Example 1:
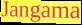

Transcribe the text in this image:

Jangama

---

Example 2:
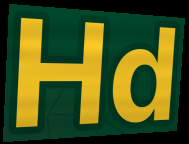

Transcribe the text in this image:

Hd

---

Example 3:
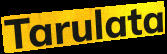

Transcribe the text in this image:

Tarulata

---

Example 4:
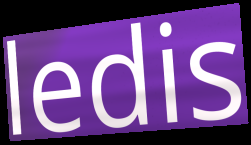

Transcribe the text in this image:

ledis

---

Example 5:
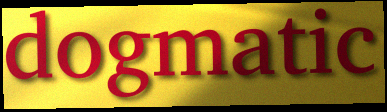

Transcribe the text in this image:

dogmatic